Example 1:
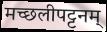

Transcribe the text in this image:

मच्छलीपट्टनम्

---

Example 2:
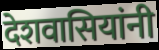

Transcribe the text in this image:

देशवासियांनी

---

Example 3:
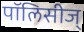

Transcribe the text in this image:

पॉलिसीज्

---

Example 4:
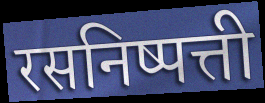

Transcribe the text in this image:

रसनिष्पत्ती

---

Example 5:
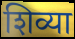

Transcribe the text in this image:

शिव्या